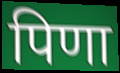
पिणा